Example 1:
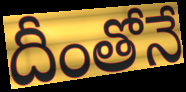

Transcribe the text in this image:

దీంతోనే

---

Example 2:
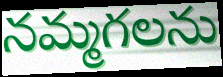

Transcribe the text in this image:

నమ్మగలను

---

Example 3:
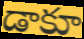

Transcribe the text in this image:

డాకూ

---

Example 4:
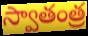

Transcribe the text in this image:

స్వాతంత్ర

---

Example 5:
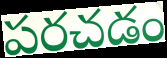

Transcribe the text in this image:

పరచడం